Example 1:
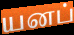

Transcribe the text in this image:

யனப்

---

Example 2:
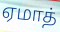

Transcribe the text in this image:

ஏமாத்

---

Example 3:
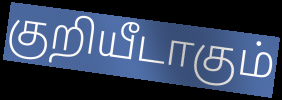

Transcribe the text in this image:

குறியீடாகும்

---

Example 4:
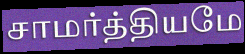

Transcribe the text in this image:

சாமர்த்தியமே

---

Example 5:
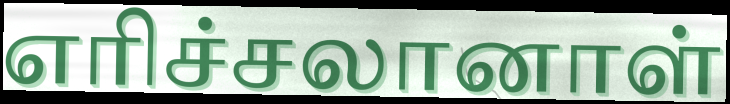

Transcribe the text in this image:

எரிச்சலானாள்